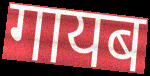
गायब